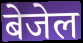
बेजेल